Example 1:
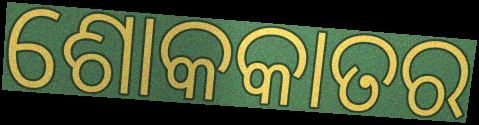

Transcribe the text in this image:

ଶୋକକାତର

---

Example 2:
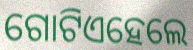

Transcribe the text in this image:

ଗୋଟିଏହେଲେ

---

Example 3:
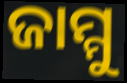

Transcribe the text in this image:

ଜାମ୍ମୁ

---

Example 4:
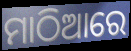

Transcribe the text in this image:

ମାଠିଆରେ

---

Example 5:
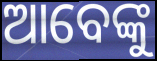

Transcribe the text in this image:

ଆବେଙ୍କୁ